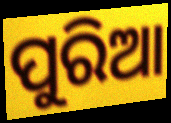
ପୁରିଆ